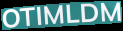
OTIMLDM